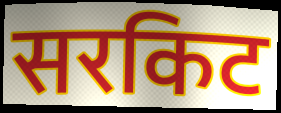
सरकिट